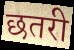
छतरी